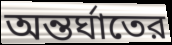
অন্তর্ঘাতের